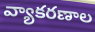
వ్యాకరణాల